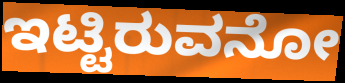
ಇಟ್ಟಿರುವನೋ